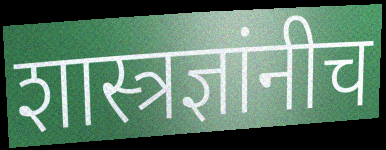
शास्त्रज्ञांनीच